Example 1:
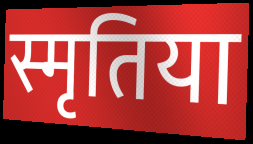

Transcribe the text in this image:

स्मृतिया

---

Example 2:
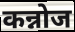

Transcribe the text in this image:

कन्नोज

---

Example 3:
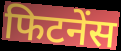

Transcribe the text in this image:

फिटनेंस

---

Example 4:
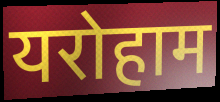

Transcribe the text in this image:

यरोहाम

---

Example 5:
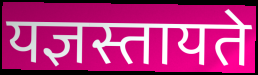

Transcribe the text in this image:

यज्ञस्तायते